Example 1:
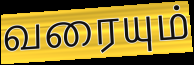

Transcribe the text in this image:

வரையும்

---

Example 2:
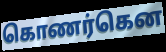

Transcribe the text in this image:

கொணர்கென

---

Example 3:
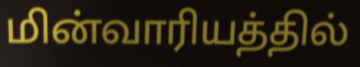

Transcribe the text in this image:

மின்வாரியத்தில்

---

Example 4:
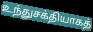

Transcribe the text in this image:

உந்துசக்தியாகத்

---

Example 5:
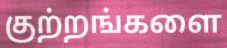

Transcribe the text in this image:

குற்றங்களை